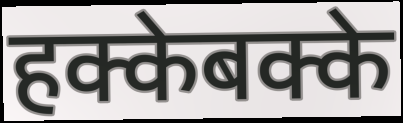
हक्केबक्के